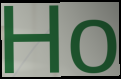
Ho